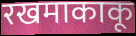
रखमाकाकू